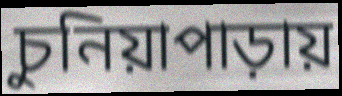
চুনিয়াপাড়ায়